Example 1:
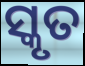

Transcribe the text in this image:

ସ୍କୃତ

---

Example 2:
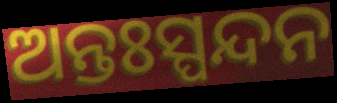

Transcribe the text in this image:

ଅନ୍ତଃସ୍ପନ୍ଦନ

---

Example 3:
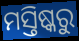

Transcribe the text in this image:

ମସ୍ତିଷ୍କରୁ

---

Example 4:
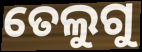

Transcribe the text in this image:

ତେଲୁଗୁ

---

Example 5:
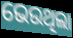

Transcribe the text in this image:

ଭେଉଥିଲା